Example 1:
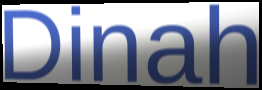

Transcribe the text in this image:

Dinah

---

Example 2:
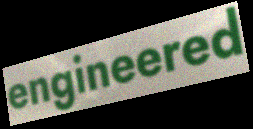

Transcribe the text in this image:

engineered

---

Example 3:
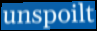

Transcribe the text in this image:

unspoilt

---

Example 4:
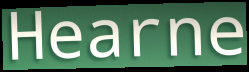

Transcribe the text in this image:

Hearne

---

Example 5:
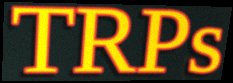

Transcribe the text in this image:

TRPs